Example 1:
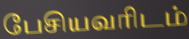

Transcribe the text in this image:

பேசியவரிடம்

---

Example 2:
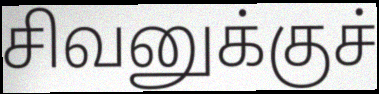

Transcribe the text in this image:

சிவனுக்குச்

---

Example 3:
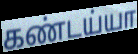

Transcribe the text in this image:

கண்டய்யா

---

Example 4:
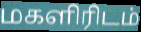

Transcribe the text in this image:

மகளிரிடம்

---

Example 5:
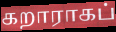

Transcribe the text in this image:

கறாராகப்